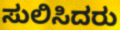
ಸುಲಿಸಿದರು